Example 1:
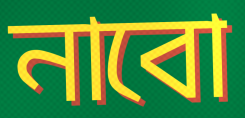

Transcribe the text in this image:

নাবো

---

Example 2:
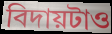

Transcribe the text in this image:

বিদায়টাও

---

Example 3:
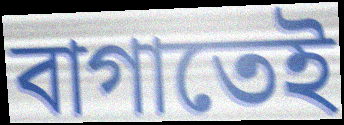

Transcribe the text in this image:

বাগাতেই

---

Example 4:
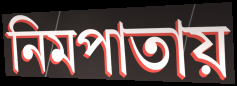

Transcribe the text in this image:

নিমপাতায়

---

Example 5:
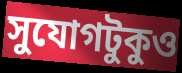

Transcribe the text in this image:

সুযোগটুকুও